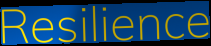
Resilience